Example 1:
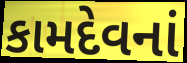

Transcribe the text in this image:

કામદેવનાં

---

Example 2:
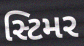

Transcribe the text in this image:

સ્ટિમર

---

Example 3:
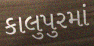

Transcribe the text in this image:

કાલુપુરમાં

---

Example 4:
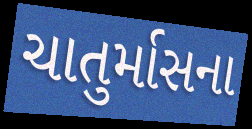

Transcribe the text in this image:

ચાતુર્માસના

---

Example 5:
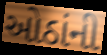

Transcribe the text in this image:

ઓઠાંની